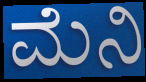
ಮೆನಿ